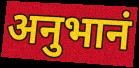
अनुभानं